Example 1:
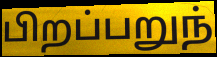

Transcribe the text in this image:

பிறப்பறுந்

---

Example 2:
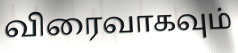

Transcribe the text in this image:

விரைவாகவும்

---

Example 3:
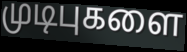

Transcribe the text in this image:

முடிபுகளை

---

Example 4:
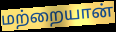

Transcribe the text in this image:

மற்றையான்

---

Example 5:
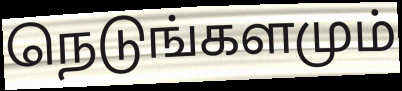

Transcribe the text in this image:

நெடுங்களமும்